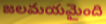
జలమయమైంది